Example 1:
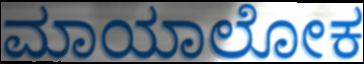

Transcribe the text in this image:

ಮಾಯಾಲೋಕ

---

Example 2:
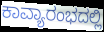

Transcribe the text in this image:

ಕಾವ್ಯಾರಂಭದಲ್ಲಿ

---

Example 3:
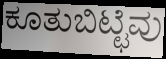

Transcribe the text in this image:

ಕೂತುಬಿಟ್ಟೆವು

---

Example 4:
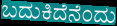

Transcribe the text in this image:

ಬದುಕಿದೆನೆಂದು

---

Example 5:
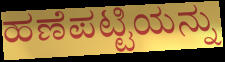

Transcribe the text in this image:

ಹಣೆಪಟ್ಟಿಯನ್ನು